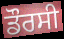
ਡੌਰਸੀ